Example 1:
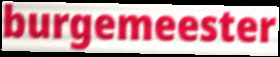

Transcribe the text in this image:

burgemeester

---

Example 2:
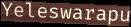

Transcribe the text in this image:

Yeleswarapu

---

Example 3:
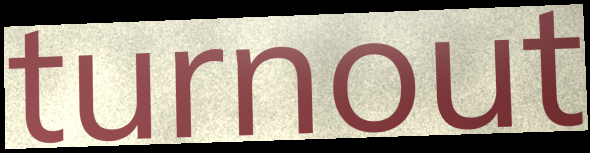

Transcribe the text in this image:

turnout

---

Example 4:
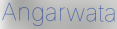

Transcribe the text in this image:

Angarwata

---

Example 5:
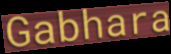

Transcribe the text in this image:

Gabhara